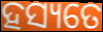
ହସ୍ୟତେ